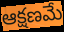
ఆక్షణమే